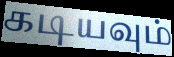
கடியவும்